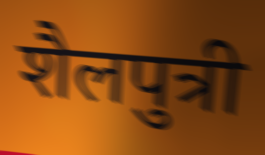
शैलपुत्री